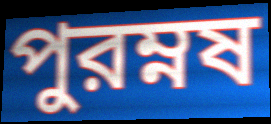
পুরম্নষ